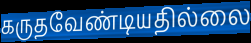
கருதவேண்டியதில்லை